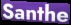
Santhe